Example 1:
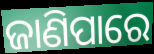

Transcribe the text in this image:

ଜାଣିପାରେ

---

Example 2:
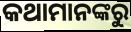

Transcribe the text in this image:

କଥାମାନଙ୍କରୁ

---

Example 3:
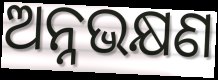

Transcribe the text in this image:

ଅନ୍ନଭକ୍ଷଣ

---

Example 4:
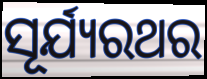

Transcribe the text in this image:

ସୂର୍ଯ୍ୟରଥର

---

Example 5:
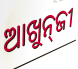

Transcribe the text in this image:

ଆଖୁନ୍‍ଜୀ